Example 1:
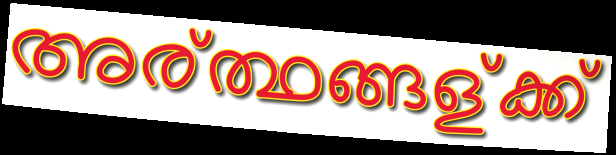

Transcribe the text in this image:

അര്ത്ഥങ്ങള്ക്ക്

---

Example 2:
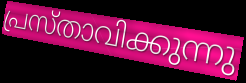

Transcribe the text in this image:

പ്രസ്താവിക്കുന്നു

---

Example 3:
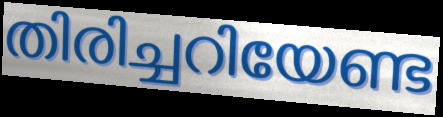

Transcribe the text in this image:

തിരിച്ചറിയേണ്ട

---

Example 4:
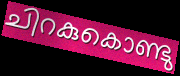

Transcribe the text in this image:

ചിറകുകൊണ്ടു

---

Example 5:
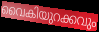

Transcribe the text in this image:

വൈകിയുറക്കവും